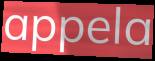
appela